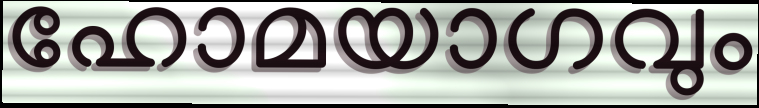
ഹോമയാഗവും